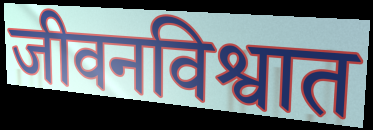
जीवनविश्वात